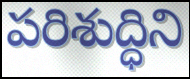
పరిశుద్ధిని